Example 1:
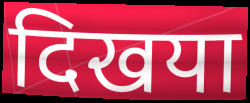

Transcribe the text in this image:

दिखया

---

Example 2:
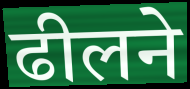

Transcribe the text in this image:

ढीलने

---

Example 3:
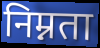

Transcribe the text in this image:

निम्नता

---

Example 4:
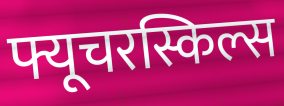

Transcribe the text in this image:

फ्यूचरस्किल्स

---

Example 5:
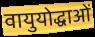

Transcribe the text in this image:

वायुयोद्धाओं